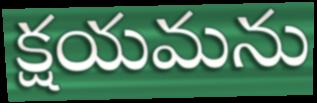
క్షయమను